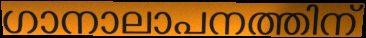
ഗാനാലാപനത്തിന്